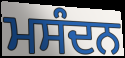
ਮਸੰਦਨ